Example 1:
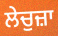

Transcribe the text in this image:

ਲੇਚੁਜ਼ਾ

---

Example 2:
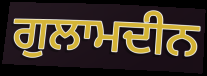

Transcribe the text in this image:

ਗੁਲਾਮਦੀਨ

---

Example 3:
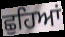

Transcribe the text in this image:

ਛੁਹਿਆਂ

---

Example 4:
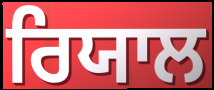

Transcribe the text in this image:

ਰਿਯਾਲ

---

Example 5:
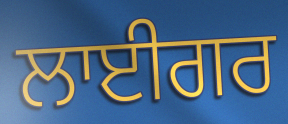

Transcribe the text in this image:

ਲਾਈਗਰ